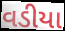
વડીયા